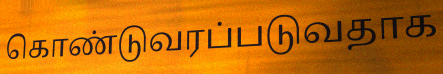
கொண்டுவரப்படுவதாக